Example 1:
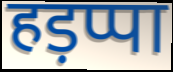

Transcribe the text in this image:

हड़प्पा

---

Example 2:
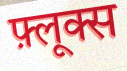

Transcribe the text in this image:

फ़्लूक्स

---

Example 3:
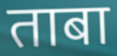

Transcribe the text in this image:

ताबा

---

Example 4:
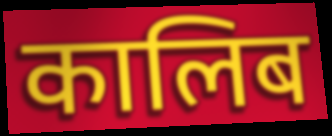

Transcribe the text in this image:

कालिब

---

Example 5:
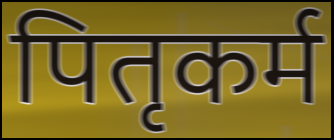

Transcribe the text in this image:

पितृकर्म